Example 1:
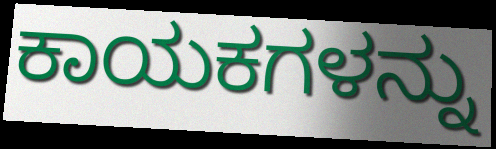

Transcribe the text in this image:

ಕಾಯಕಗಳನ್ನು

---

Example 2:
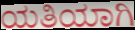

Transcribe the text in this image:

ಯತಿಯಾಗಿ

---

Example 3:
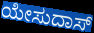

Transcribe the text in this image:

ಯೇಸುದಾಸ್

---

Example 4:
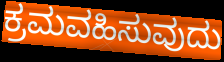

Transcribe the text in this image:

ಕ್ರಮವಹಿಸುವುದು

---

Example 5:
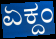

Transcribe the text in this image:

ಏಕ್ದಂ